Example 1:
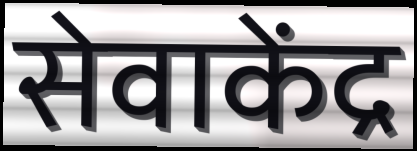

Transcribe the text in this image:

सेवाकेंद्र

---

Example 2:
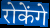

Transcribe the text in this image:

रोकेंगे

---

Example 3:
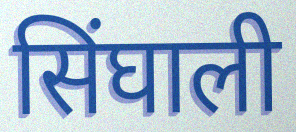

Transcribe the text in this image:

सिंघाली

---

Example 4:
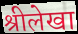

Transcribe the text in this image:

श्रीलेखा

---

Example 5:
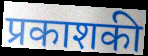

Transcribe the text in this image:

प्रकाशकी